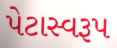
પેટાસ્વરૂપ